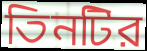
তিনটির